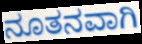
ನೂತನವಾಗಿ